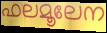
ഫലമൂലേന